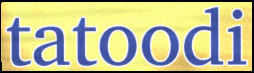
tatoodi